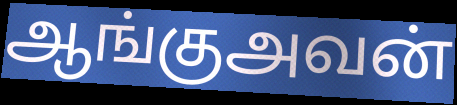
ஆங்குஅவன்